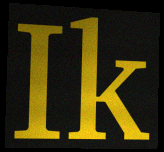
Ik